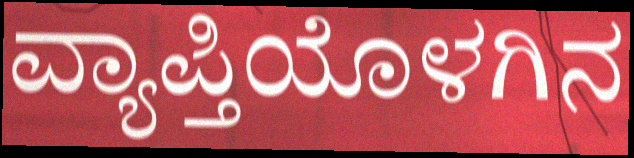
ವ್ಯಾಪ್ತಿಯೊಳಗಿನ